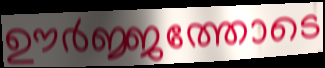
ഊർജ്ജത്തോടെ